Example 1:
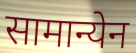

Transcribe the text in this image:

सामान्येन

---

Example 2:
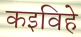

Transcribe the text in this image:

कइविहे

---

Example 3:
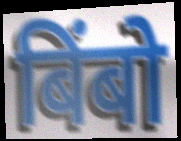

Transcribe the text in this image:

बिंबो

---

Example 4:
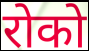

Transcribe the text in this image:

रोको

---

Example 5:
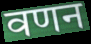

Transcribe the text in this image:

वणन